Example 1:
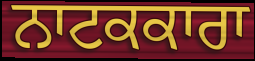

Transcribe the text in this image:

ਨਾਟਕਕਾਰਾ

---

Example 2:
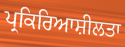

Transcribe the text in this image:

ਪ੍ਰਕਿਰਿਆਸ਼ੀਲਤਾ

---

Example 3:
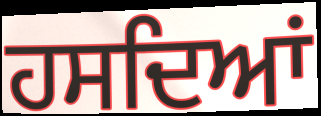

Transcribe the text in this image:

ਹਸਦਿਆਂ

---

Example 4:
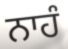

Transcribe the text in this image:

ਨਾਹੰ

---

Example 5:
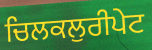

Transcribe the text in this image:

ਚਿਲਕਲੁਰੀਪੇਟ